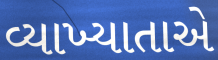
વ્યાખ્યાતાએ